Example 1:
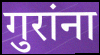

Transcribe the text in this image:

गुरांना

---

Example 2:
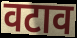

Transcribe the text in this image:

वटाव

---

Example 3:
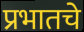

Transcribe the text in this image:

प्रभातचे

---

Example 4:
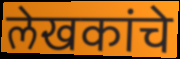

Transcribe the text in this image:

लेखकांचे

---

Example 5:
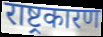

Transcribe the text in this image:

राष्ट्रकारण